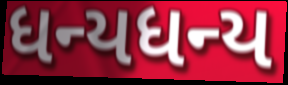
ધન્યધન્ય